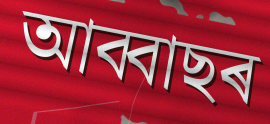
আব্বাছৰ